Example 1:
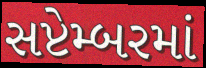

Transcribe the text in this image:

સપ્ટેમ્બરમાં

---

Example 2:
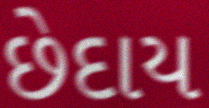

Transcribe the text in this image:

છેદાય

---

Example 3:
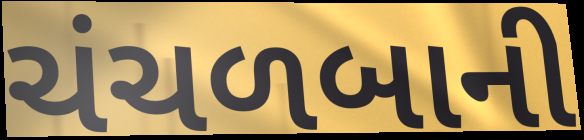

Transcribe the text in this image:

ચંચળબાની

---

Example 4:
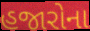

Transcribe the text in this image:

હજારોના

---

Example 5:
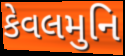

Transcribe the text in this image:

કેવલમુનિ